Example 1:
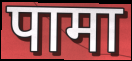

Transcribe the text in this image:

पामा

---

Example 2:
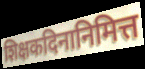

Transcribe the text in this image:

शिक्षकदिनानिमित्त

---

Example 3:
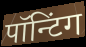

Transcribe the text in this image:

पॉन्टिंग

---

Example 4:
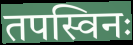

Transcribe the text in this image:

तपस्विनः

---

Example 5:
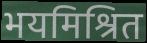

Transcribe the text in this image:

भयमिश्रित